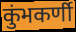
कुंभकर्णी